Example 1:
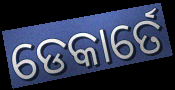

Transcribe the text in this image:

ଡେକାର୍ତେ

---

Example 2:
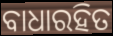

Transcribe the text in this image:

ବାଧାରହିତ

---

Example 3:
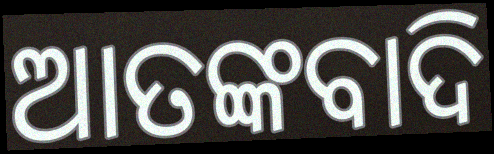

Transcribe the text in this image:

ଆତଙ୍କବାଦି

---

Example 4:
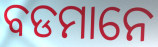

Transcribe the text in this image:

ବଡମାନେ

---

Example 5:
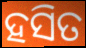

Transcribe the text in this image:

ହସିତ